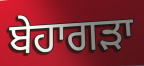
ਬੇਹਾਗੜਾ